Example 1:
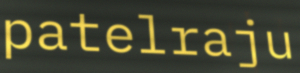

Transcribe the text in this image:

patelraju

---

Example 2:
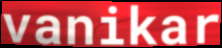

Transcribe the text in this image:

vanikar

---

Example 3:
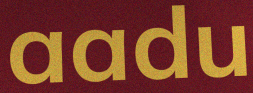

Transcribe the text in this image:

aadu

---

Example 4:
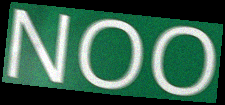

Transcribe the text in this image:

NOO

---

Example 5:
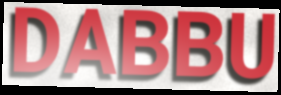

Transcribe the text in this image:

DABBU